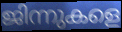
ജിന്നുകളെ